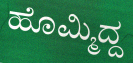
ಹೊಮ್ಮಿದ್ದ